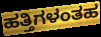
ಹತ್ತಿಗಳಂತಹ